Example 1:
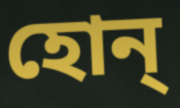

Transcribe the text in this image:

হোন্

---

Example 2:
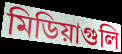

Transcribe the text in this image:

মিডিয়াগুলি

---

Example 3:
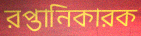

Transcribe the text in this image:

রপ্তানিকারক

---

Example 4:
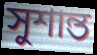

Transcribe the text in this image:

সুশান্ত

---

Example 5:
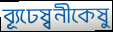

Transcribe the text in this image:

ব্যূঢেষ্বনীকেষু